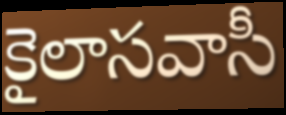
కైలాసవాసీ